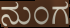
ನುಂಗ